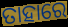
ତାହାରେ